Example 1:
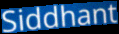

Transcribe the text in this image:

Siddhant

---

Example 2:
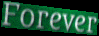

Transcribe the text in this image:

Forever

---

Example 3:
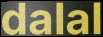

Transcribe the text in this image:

dalal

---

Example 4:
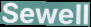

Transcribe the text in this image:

Sewell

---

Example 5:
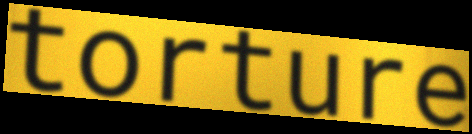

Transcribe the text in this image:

torture